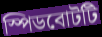
স্পিডবোটটি